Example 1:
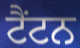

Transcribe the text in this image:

ਟੈਂਟਨ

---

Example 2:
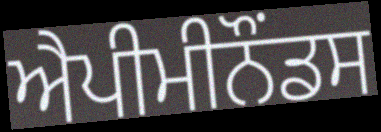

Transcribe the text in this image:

ਐਪੀਮੀਨੌਂਡਸ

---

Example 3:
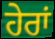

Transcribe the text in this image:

ਹੇਰਾਂ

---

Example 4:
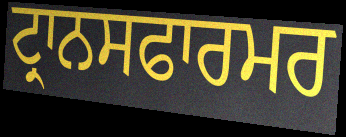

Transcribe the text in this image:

ਟ੍ਰਾਨਸਫਾਰਮਰ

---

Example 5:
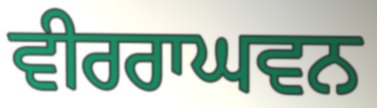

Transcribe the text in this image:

ਵੀਰਰਾਘਵਨ